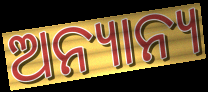
ଅନ୍ୟାନ୍ୟ